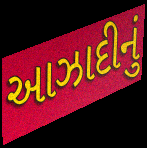
આઝાદીનું